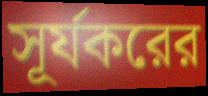
সূর্যকরের